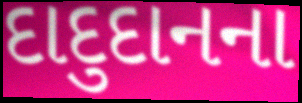
દાદુદાનના